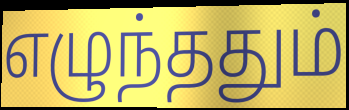
எழுந்ததும்